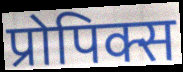
प्रोपिक्स